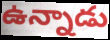
ఉన్నాడు